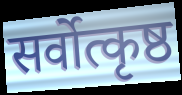
सर्वोत्कृष्ठ